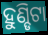
ହୁଣ୍ଡିଟା